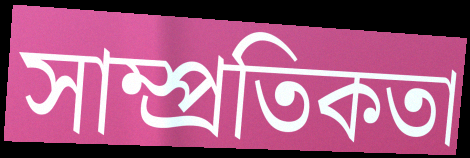
সাম্প্রতিকতা